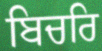
ਬਿਚਰਿ